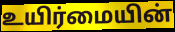
உயிர்மையின்